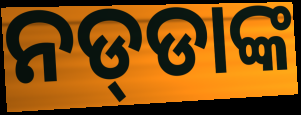
ନଡ୍‌ଡାଙ୍କ